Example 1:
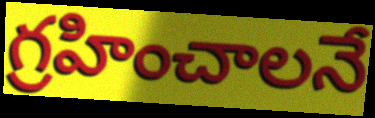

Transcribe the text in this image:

గ్రహించాలనే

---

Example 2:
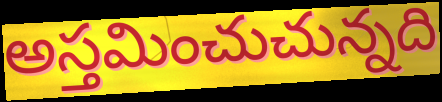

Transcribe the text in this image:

అస్తమించుచున్నది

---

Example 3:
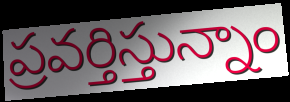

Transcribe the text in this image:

ప్రవర్తిస్తున్నాం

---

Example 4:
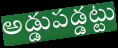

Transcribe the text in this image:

అడ్డుపడ్డట్టు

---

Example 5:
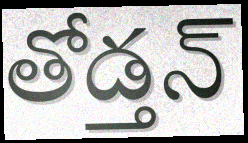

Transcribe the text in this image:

తోడ్తన్